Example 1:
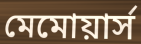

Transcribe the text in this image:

মেমোয়ার্স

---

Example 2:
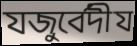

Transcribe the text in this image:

যজুর্বেদীয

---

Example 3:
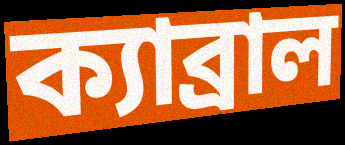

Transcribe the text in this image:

ক্যাব্রাল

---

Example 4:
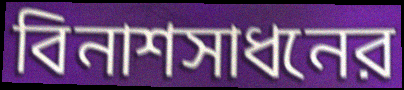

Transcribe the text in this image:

বিনাশসাধনের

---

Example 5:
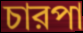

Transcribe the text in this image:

চারপা